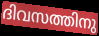
ദിവസത്തിനു